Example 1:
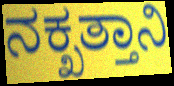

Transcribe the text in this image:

ನಕ್ಖತ್ತಾನಿ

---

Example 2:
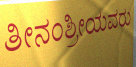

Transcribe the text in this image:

ತೀನಂಶ್ರೀಯವರು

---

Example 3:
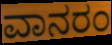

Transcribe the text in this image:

ವಾನರಂ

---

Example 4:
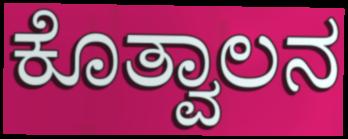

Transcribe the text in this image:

ಕೊತ್ವಾಲನ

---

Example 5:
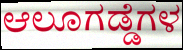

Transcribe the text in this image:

ಆಲೂಗಡ್ಡೆಗಳ